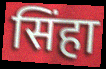
सिंहा